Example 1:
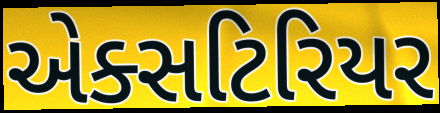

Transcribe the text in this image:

એક્સટિરિયર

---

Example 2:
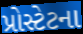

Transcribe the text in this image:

પ્રોસ્ટેટના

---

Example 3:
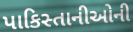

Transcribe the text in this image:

પાકિસ્તાનીઓની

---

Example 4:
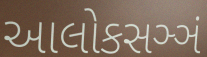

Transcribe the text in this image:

આલોકસઞ્ઞં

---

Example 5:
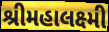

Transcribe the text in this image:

શ્રીમહાલક્ષ્મી